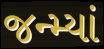
જન્મ્યાં